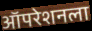
ऑपरेशनला